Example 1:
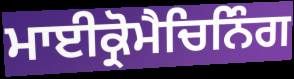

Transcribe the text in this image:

ਮਾਈਕ੍ਰੋਮੈਚਿਨਿੰਗ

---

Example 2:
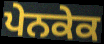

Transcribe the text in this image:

ਪੇਨਕੇਕ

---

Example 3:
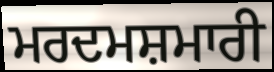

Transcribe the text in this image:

ਮਰਦਮਸ਼ਮਾਰੀ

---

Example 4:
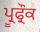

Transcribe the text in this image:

ਪ੍ਰੂਫ੍ਰੌਕ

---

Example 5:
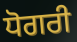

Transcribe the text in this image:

ਧੋਗਰੀ